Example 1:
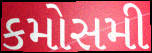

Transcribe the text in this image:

કમોસમી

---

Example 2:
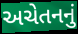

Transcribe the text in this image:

અચેતનનું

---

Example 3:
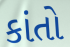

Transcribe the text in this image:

કાંતો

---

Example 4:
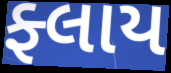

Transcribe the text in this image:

ફ્લાય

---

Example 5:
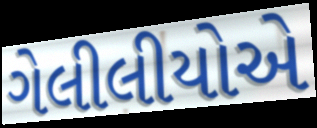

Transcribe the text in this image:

ગેલીલીયોએ